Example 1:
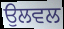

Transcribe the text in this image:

ਉਲਵਲ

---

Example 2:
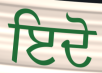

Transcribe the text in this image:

ਇਦੋ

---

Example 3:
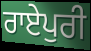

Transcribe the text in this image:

ਰਾਏਪੁਰੀ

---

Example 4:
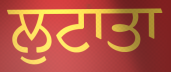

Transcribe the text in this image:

ਲੁਟਾਤਾ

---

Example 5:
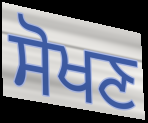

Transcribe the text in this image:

ਸੋਖਣ